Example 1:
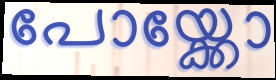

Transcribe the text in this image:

പോയ്ക്കോ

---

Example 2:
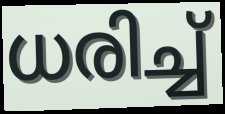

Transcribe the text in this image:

ധരിച്ച്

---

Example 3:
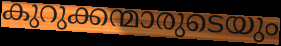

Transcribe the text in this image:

കുറുക്കന്മാരുടെയും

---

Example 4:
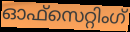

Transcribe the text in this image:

ഓഫ്സെറ്റിംഗ്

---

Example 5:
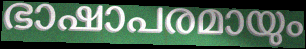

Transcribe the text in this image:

ഭാഷാപരമായും